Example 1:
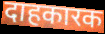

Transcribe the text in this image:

दाहकारक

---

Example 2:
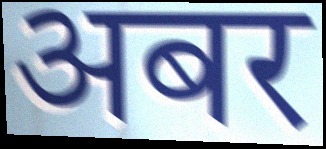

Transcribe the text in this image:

अबर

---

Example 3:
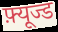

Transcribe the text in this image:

फ़्यूज्ड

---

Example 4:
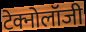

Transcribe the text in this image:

टेक्‍नोलॉजी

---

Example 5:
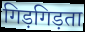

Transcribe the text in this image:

गिड़गिड़ता